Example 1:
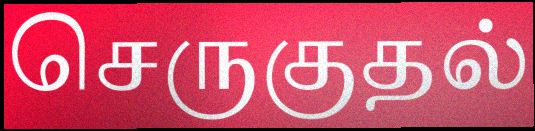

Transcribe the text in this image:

செருகுதல்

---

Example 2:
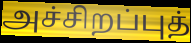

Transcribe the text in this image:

அச்சிறப்புத்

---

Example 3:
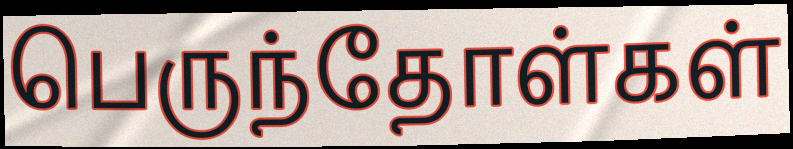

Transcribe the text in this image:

பெருந்தோள்கள்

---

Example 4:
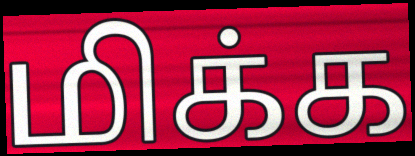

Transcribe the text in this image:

மிக்க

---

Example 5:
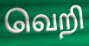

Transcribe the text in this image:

வெறி